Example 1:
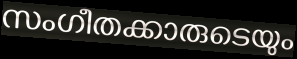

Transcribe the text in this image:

സംഗീതക്കാരുടെയും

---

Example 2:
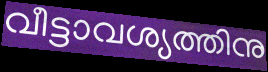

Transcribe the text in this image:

വീട്ടാവശ്യത്തിനു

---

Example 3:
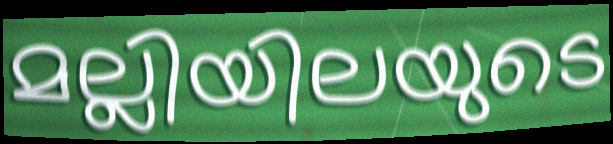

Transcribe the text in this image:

മല്ലിയിലയുടെ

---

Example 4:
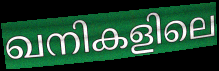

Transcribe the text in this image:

ഖനികളിലെ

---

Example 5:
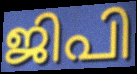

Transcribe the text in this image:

ജിപി